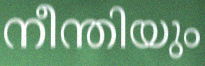
നീന്തിയും